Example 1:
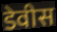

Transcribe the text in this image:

डेवीस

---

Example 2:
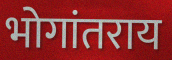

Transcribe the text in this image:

भोगांतराय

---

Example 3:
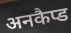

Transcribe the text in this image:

अनकैप्ड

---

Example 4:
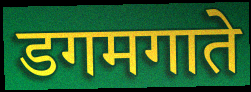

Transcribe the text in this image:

डगमगाते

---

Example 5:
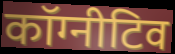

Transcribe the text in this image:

कॉग्‍नीटिव